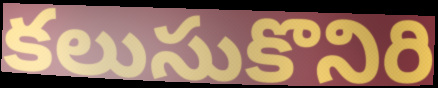
కలుసుకొనిరి